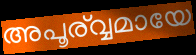
അപൂര്വ്വമായേ